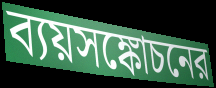
ব্যয়সঙ্কোচনের